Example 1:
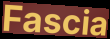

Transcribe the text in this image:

Fascia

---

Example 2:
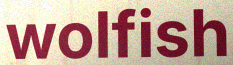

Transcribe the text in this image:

wolfish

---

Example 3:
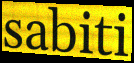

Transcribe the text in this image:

sabiti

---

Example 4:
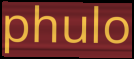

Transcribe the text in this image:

phulo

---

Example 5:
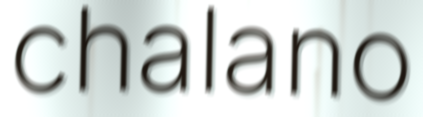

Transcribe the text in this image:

chalano